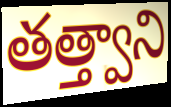
తత్త్వాని